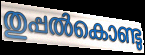
തുപ്പൽകൊണ്ടു